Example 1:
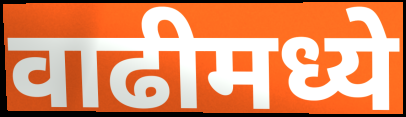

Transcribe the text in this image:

वाढीमध्ये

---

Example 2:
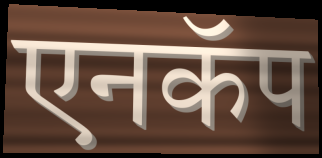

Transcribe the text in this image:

एनकॅप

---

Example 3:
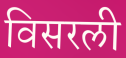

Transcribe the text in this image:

विसरली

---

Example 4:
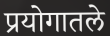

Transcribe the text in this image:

प्रयोगातले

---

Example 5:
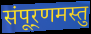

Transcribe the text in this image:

संपूर्णमस्तु